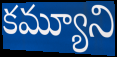
కమ్యూని